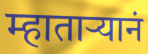
म्हातार्‍यानं